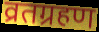
व्रतग्रहण